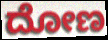
ದೋಣ